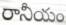
రానీయం